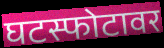
घटस्फोटावर